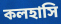
কলহাসি